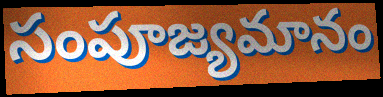
సంపూజ్యమానం